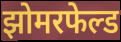
झोमरफेल्ड